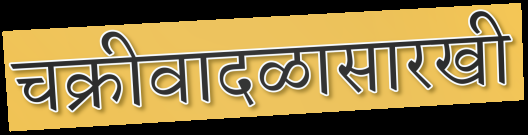
चक्रीवादळासारखी